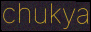
chukya